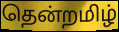
தென்றமிழ்